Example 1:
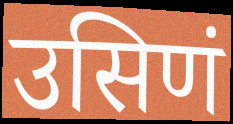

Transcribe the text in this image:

उसिणं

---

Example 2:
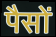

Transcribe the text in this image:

पैसों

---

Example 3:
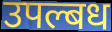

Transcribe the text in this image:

उपल्‍बध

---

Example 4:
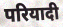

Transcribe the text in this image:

परियादी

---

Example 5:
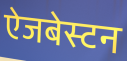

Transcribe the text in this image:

ऐजबेस्टन